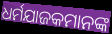
ଧର୍ମଯାଜକମାନଙ୍କ